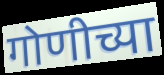
गोणीच्या